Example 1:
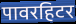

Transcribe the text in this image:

पावरहिटर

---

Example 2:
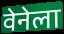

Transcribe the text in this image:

वेनेला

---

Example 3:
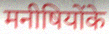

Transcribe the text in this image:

मनीषियोंके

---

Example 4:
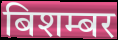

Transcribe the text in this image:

बिशम्बर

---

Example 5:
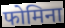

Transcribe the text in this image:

फोमिना